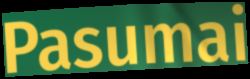
Pasumai